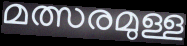
മത്സരമുള്ള